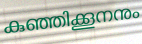
കുഞ്ഞിക്കൂനനും